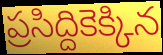
ప్రసిద్దికెక్కిన